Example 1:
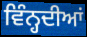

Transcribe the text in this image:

ਵਿੰਨ੍ਹਦੀਆਂ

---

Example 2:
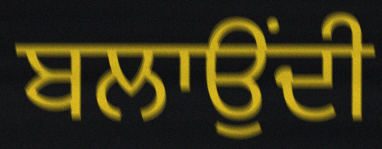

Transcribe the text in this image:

ਬਲਾਉਂਦੀ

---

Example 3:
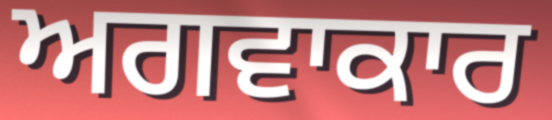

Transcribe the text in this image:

ਅਗਵਾਕਾਰ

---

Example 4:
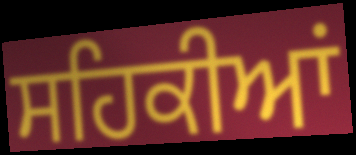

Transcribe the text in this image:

ਸਹਿਕੀਆਂ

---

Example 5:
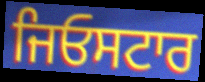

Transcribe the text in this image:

ਜਿਓਸਟਾਰ